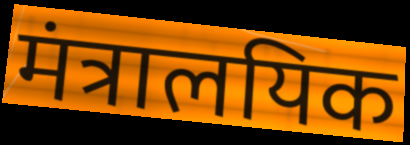
मंत्रालयिक